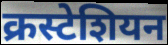
क्रस्टेशियन